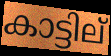
കാട്ടില്